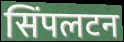
सिंपलटन